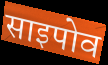
साइपोव